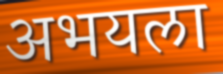
अभयला